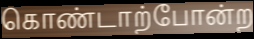
கொண்டாற்போன்ற